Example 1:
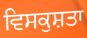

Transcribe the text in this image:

ਵਿਸਕੁਸ਼ਤਾ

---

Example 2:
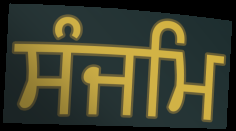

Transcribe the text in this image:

ਸੰਜਮਿ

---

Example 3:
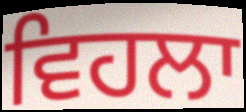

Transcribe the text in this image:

ਵਿਹਲਾ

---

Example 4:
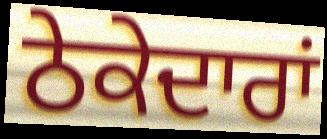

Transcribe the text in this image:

ਠੇਕੇਦਾਰਾਂ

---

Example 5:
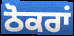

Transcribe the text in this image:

ਠੋਕਰਾਂ